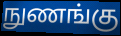
நுணங்கு